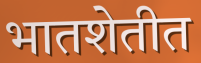
भातशेतीत